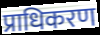
प्राधिकरण